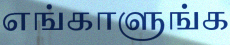
எங்காளுங்க